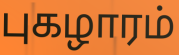
புகழாரம்